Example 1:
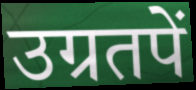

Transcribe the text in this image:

उग्रतपें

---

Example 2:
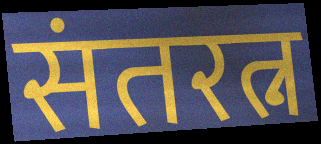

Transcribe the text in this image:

संतरत्न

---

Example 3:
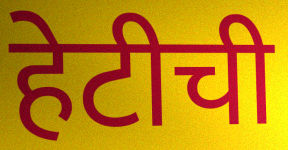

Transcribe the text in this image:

हेटीची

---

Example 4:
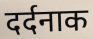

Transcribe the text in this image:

दर्दनाक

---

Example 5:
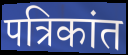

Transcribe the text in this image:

पत्रिकांत